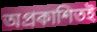
অপ্রকাশিতই